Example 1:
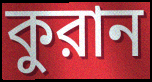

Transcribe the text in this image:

কুরান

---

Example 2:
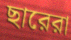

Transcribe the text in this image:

ছারেরা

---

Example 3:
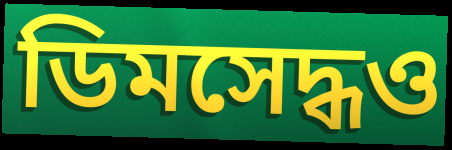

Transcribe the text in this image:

ডিমসেদ্ধও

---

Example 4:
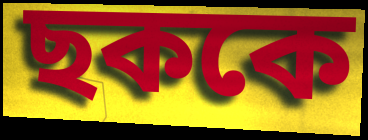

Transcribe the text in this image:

ছককে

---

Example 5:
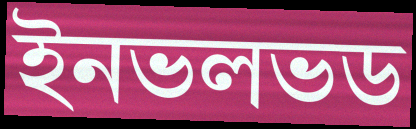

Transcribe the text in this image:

ইনভলভড